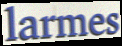
larmes